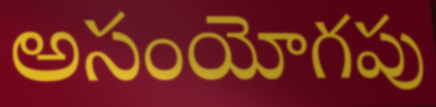
అసంయోగపు